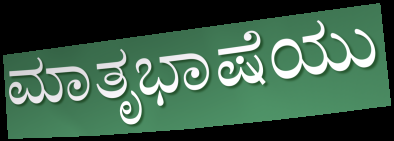
ಮಾತೃಭಾಷೆಯು